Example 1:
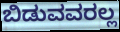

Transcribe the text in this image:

ಬಿಡುವವರಲ್ಲ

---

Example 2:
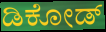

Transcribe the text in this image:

ಡಿಕೋಡ್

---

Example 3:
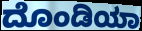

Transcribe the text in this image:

ದೊಂಡಿಯಾ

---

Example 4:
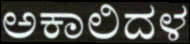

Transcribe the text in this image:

ಅಕಾಲಿದಳ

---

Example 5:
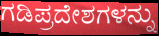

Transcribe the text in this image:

ಗಡಿಪ್ರದೇಶಗಳನ್ನು